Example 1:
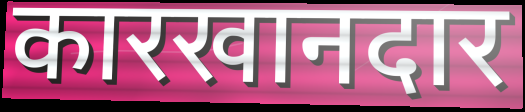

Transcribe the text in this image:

कारखानदार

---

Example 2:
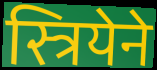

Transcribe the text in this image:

स्त्रियेने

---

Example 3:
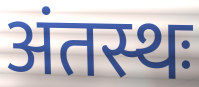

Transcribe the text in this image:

अंतस्थः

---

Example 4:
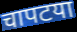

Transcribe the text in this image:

चापटया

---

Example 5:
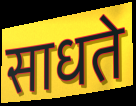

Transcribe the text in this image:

साधते